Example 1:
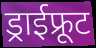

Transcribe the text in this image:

ड्राईफ्रूट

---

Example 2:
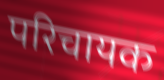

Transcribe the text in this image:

परिचायक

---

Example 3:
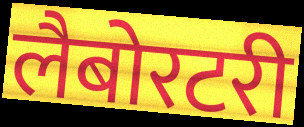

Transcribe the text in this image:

लैबोरटरी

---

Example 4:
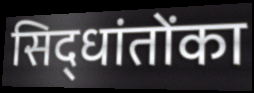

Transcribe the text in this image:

सिद्धांतोंका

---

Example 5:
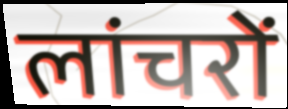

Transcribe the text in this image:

लांचरों